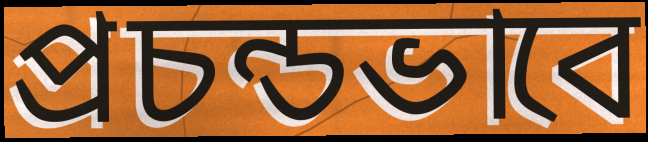
প্রচন্ডভাবে